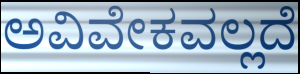
ಅವಿವೇಕವಲ್ಲದೆ